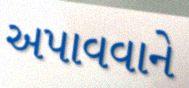
અપાવવાને